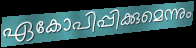
ഏകോപിപ്പിക്കുമെന്നും